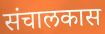
संचालकास